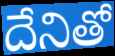
దేనితో